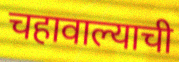
चहावाल्याची